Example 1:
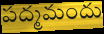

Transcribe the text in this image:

పద్మమందు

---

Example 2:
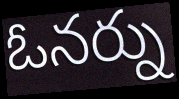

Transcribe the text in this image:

ఓనర్ను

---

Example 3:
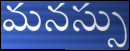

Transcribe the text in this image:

మనస్సు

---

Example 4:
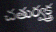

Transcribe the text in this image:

చతుర్వక్త్ర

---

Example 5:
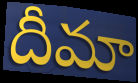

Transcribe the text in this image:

దీమా